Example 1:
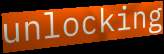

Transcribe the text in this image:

unlocking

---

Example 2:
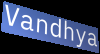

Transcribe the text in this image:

Vandhya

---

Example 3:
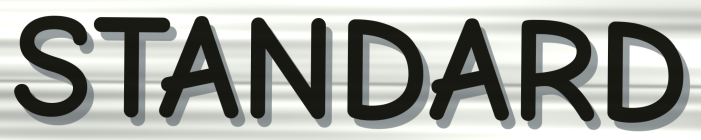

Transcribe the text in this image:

STANDARD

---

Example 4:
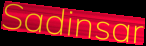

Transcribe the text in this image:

Sadinsar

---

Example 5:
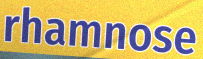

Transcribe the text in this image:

rhamnose